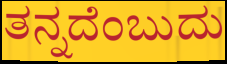
ತನ್ನದೆಂಬುದು